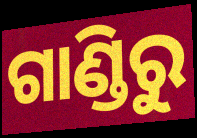
ଗାଣ୍ଡିରୁ